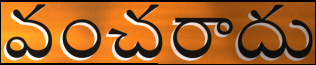
వంచరాదు